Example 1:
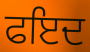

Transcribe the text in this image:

ਫਇਦ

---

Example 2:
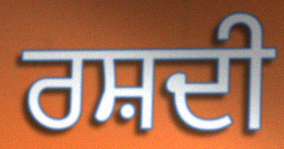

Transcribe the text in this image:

ਰਸ਼ਦੀ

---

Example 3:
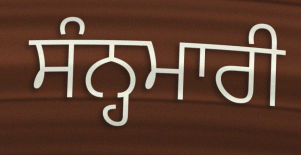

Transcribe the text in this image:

ਸੰਨ੍ਹਮਾਰੀ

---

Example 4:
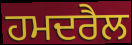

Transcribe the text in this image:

ਹਮਦਰੈਲ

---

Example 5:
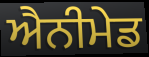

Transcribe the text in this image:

ਐਨੀਮੇਡ